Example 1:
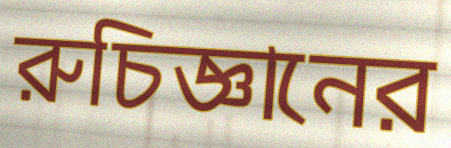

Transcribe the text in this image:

রুচিজ্ঞানের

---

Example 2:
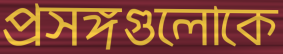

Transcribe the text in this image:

প্রসঙ্গগুলোকে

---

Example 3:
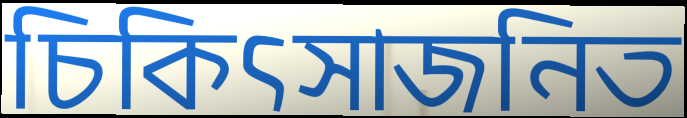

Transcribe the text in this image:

চিকিৎসাজনিত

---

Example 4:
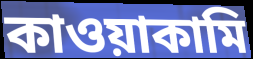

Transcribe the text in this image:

কাওয়াকামি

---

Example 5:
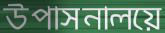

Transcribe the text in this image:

উপাসনালয়ে